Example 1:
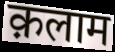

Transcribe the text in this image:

क़लाम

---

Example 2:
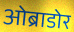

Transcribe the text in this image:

ओब्राडोर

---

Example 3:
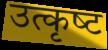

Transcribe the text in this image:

उत्‍कृष्‍ट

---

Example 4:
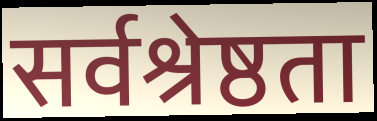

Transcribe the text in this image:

सर्वश्रेष्ठता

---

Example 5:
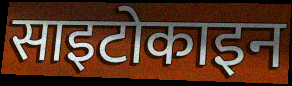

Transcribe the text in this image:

साइटोकाइन